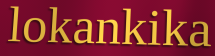
lokankika